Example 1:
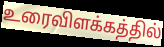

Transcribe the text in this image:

உரைவிளக்கத்தில்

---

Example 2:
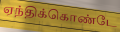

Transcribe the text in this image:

ஏந்திக்கொண்டே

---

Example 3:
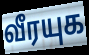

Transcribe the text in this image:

வீரயுக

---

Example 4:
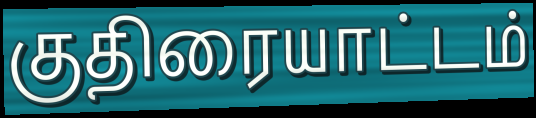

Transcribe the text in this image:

குதிரையாட்டம்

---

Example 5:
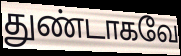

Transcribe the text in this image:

துண்டாகவே